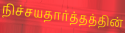
நிச்சயதார்த்தத்தின்